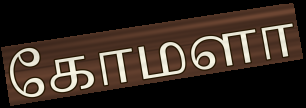
கோமளா